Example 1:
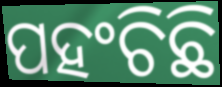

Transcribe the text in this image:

ପହଂଚିଛି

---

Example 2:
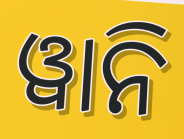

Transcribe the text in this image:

ୱାନି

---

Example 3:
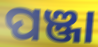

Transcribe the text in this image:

ପଞ୍ଜା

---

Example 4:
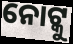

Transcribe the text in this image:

ନୋଟ୍କୁ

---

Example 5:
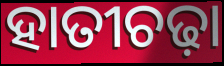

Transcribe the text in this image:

ହାତୀଚଢ଼ା